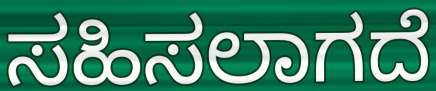
ಸಹಿಸಲಾಗದೆ